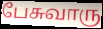
பேசுவாரு